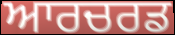
ਆਰਚਰਡ